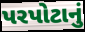
પરપોટાનું